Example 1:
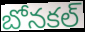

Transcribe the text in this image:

బోనకల్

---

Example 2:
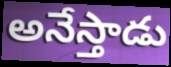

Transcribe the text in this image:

అనేస్తాడు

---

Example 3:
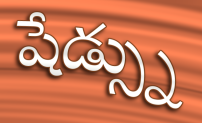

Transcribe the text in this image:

షేడ్స్ను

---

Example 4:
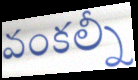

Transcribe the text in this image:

వంకల్నీ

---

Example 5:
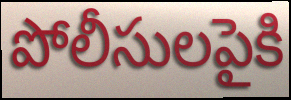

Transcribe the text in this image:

పోలీసులపైకి